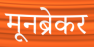
मूनब्रेकर